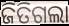
ଜିତିଗଲା